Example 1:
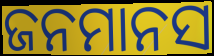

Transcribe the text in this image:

ଜନମାନସ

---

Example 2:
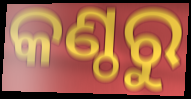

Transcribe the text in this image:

କଣ୍ଠରୁ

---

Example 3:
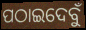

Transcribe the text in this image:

ପଠାଇଦେବୁଁ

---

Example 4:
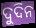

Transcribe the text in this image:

ଦୁଦିନ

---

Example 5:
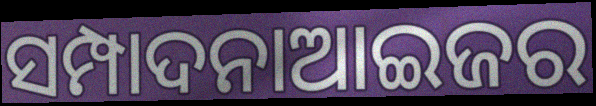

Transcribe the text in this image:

ସମ୍ପାଦନାଆଇଜର